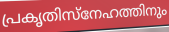
പ്രകൃതിസ്നേഹത്തിനും